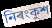
নিৰংকুশ